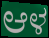
ಆಳ